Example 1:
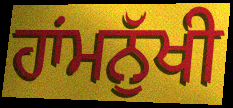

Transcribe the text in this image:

ਹਾਂਮਨੁੱਖੀ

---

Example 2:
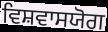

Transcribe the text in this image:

ਵਿਸ਼ਵਾਸਯੋਗ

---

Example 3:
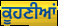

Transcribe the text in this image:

ਕੂਹਣੀਆਂ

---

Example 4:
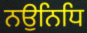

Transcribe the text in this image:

ਨਉਨਿਧਿ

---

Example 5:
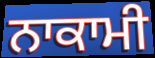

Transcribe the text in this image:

ਨਾਕਾਮੀ